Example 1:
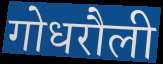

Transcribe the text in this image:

गोधरौली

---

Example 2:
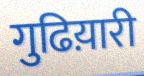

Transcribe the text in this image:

गुढिय़ारी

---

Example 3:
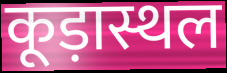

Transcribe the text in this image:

कूड़ास्थल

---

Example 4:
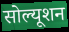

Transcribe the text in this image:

सोल्यूशन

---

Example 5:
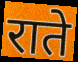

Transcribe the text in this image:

राते